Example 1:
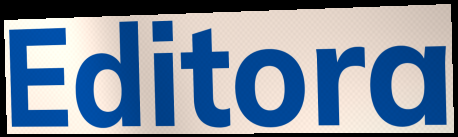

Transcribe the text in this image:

Editora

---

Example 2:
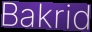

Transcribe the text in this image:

Bakrid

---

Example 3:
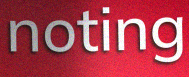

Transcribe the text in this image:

noting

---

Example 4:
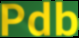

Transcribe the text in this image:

Pdb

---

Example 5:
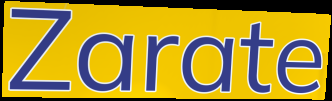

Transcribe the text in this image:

Zarate